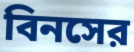
বিনসের